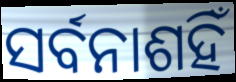
ସର୍ବନାଶହିଁ